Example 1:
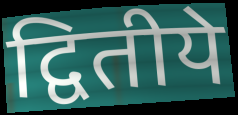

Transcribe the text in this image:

द्वितीये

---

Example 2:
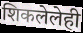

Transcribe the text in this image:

शिकलेलेही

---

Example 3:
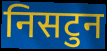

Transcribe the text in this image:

निसटुन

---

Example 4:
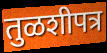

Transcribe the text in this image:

तुळशीपत्र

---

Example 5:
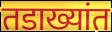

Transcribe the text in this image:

तडाख्यांत